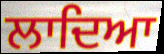
ਲਾਦਿਆ